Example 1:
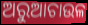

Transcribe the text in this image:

ଅରୁଆଚାଉଳ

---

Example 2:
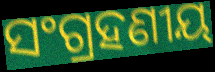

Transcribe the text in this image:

ସଂଗ୍ରହଣୀୟ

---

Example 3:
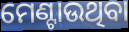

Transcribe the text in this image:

ମେଣ୍ଟାଉଥିବା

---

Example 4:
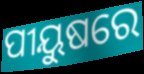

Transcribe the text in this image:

ପୀୟୁଷରେ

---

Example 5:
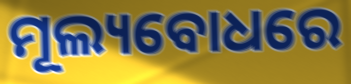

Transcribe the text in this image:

ମୂଲ୍ୟବୋଧରେ